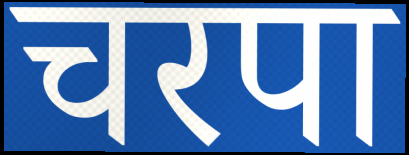
चरपा